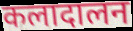
कलादालन